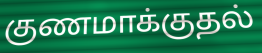
குணமாக்குதல்